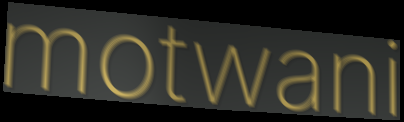
motwani